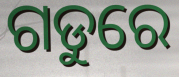
ଗଡୁରେ